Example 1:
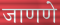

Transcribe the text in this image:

जाणणे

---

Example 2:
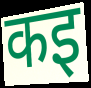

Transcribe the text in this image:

कइ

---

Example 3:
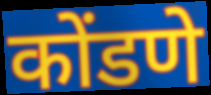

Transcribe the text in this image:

कोंडणे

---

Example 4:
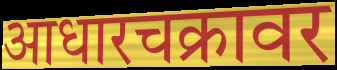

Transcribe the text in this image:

आधारचक्रावर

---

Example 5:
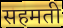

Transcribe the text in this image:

सहमती